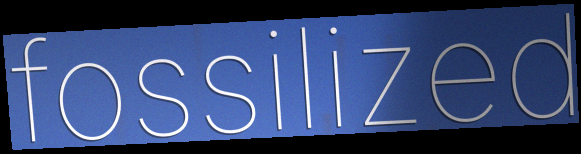
fossilized